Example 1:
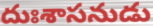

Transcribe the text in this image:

దుఃశాసనుడు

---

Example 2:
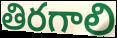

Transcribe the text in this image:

తిరగాలి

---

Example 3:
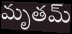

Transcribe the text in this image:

మృతమ్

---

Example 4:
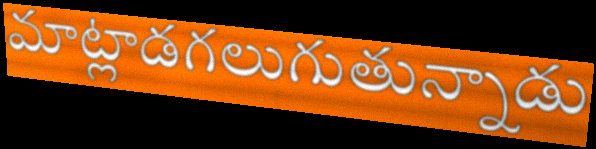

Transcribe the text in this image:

మాట్లాడగలుగుతున్నాడు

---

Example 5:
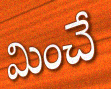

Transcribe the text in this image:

మించే